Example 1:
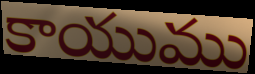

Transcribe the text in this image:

కాయుము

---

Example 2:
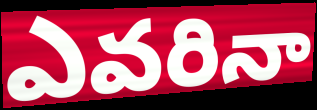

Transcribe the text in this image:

ఎవరినా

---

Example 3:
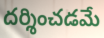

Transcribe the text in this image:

దర్శించడమే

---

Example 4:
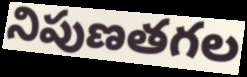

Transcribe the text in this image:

నిపుణతగల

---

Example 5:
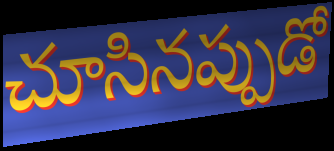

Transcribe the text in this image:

చూసినప్పుడో